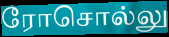
ரோசொல்லு